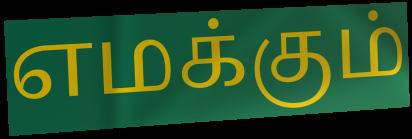
எமக்கும்